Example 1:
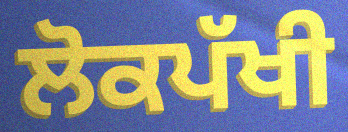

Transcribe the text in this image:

ਲੋਕਪੱਖੀ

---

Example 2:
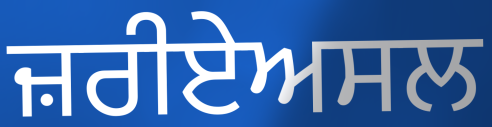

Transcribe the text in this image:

ਜ਼ਰੀਏਅਸਲ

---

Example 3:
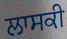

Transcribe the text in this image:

ਲਾਸਕੀ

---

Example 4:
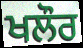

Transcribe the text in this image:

ਖਲੌਰ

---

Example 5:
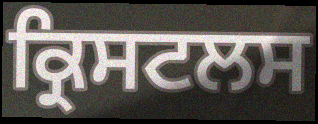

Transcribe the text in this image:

ਕ੍ਰਿਸਟਲਸ